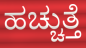
ಹಚ್ಚುತ್ತೆ